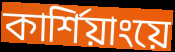
কার্শিয়াংয়ে